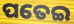
ପତେଇ